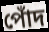
পোঁদ